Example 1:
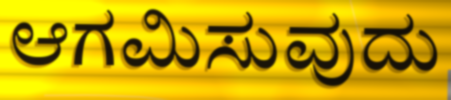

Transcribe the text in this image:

ಆಗಮಿಸುವುದು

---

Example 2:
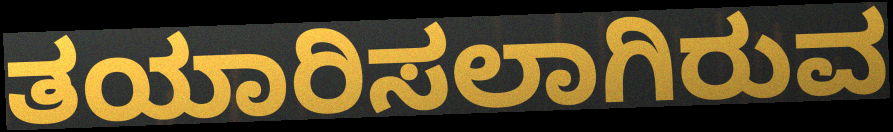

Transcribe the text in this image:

ತಯಾರಿಸಲಾಗಿರುವ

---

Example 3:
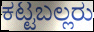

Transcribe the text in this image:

ಕಟ್ಟಬಲ್ಲರು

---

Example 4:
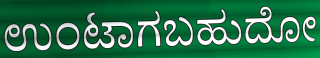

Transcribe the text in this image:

ಉಂಟಾಗಬಹುದೋ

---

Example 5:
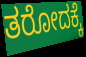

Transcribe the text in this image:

ತರೋದಕ್ಕೆ